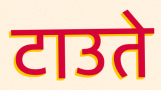
टाउते